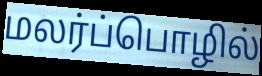
மலர்ப்பொழில்